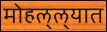
मोहल्ल्यात